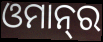
ଓମାନ୍‌ର